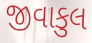
જીવાકુલ